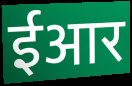
ईआर